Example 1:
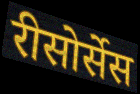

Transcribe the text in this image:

रीसोर्सेस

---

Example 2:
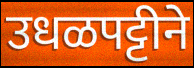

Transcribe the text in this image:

उधळपट्टीने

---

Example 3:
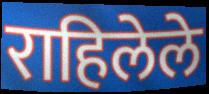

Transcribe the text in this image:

राहिलेले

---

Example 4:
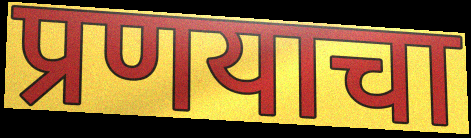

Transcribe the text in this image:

प्रणयाचा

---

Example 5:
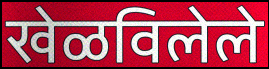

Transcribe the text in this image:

खेळविलेले